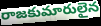
రాజకుమారులైన